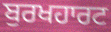
ਬੁਰਖਹਾਰਟ